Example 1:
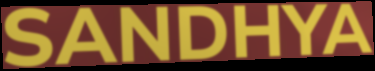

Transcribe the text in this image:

SANDHYA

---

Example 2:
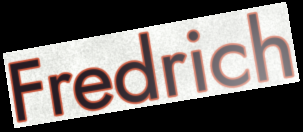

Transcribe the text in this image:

Fredrich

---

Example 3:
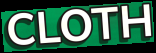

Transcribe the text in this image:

CLOTH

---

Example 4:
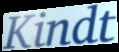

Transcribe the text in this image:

Kindt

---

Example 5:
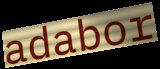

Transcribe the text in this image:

adabor